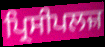
ਪ੍ਰਿਸੀਪਲਜ਼